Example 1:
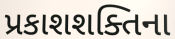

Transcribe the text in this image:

પ્રકાશશક્તિના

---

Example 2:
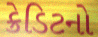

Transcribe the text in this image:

ક્રેડિટનો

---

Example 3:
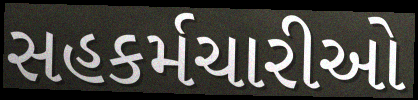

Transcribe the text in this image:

સહકર્મચારીઓ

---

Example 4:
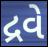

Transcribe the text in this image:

દ્રવે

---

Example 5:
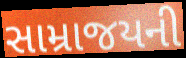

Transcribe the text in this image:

સામ્રાજયની